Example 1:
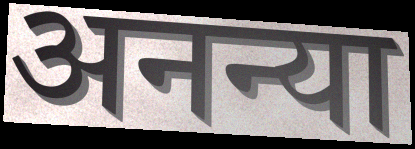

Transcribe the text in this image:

अनन्या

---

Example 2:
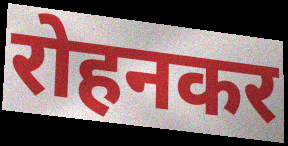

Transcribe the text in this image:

रोहनकर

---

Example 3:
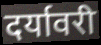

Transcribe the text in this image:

दर्यावरी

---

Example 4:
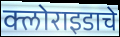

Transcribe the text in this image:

क्लोराइडाचे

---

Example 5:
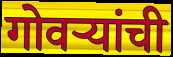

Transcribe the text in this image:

गोवऱ्यांची